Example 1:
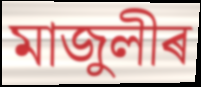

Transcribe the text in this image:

মাজুলীৰ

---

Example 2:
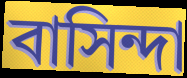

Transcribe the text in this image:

বাসিন্দা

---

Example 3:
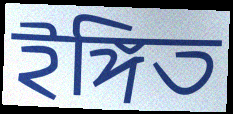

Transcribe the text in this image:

ইঙ্গিত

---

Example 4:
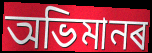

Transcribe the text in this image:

অভিমানৰ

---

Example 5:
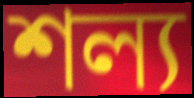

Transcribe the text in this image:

শল্য